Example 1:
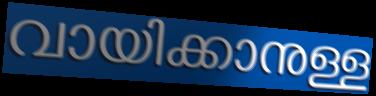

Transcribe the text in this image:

വായിക്കാനുള്ള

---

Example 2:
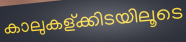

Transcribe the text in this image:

കാലുകള്ക്കിടയിലൂടെ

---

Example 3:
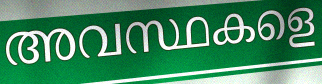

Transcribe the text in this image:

അവസ്ഥകളെ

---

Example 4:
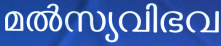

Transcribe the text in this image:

മൽസ്യവിഭവ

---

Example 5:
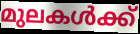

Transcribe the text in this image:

മുലകൾക്ക്